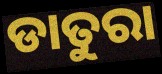
ଡାତୁରା